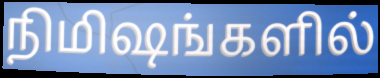
நிமிஷங்களில்